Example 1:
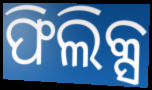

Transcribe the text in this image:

ଫିଲିକ୍ସ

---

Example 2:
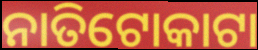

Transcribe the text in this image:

ନାତିଟୋକାଟା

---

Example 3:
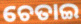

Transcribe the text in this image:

ଚେତାଇ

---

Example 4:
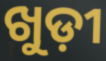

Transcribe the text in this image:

ଖୁଡ଼ୀ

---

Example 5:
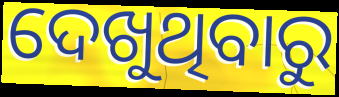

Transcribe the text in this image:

ଦେଖୁଥିବାରୁ